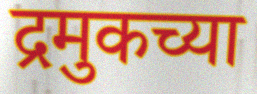
द्रमुकच्या